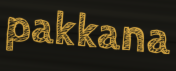
pakkana